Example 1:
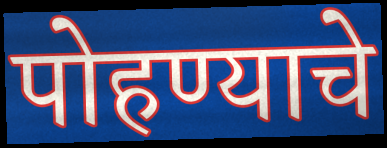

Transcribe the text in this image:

पोहण्याचे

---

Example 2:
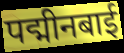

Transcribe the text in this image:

पद्मीनबाई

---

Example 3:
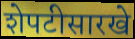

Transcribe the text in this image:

शेपटीसारखे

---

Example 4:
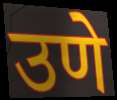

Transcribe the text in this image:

उणे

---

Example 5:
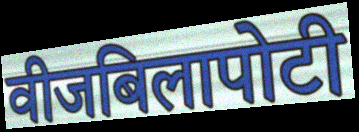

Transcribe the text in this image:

वीजबिलापोटी